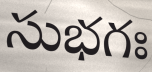
సుభగః